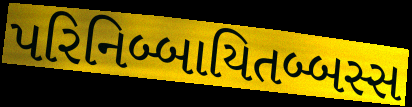
પરિનિબ્બાયિતબ્બસ્સ